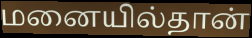
மனையில்தான்